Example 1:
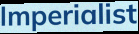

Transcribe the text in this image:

Imperialist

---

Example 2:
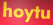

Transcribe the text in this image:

hoytu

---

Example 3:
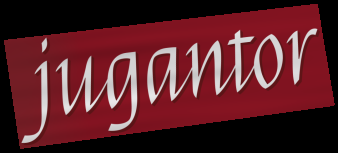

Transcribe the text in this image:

jugantor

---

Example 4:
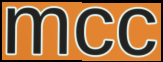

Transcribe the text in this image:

mcc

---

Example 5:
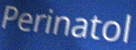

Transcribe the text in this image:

Perinatol